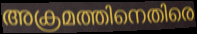
അക്രമത്തിനെതിരെ